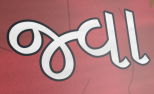
જ્વા